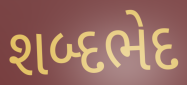
શબ્દભેદ